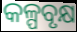
କଳ୍ପବୃକ୍ଷ